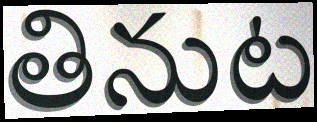
తినుట